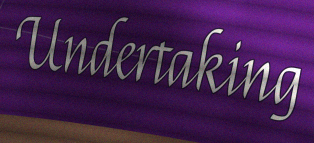
Undertaking